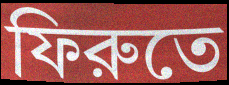
ফিরুতে